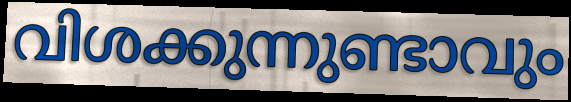
വിശക്കുന്നുണ്ടാവും